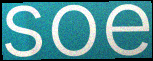
soe